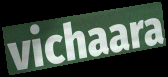
vichaara